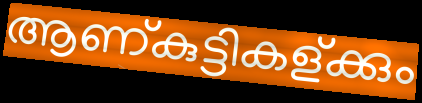
ആണ്കുട്ടികള്ക്കും